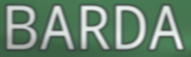
BARDA